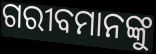
ଗରୀବମାନଙ୍କୁ